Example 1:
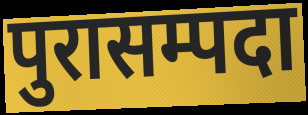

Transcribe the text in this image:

पुरासम्पदा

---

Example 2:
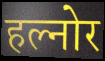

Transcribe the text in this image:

हल्नोर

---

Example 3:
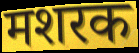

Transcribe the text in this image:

मशरक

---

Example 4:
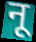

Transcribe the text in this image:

नू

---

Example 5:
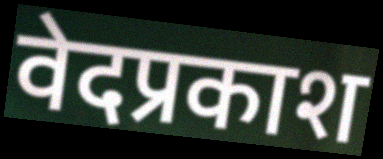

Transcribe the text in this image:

वेदप्रकाश